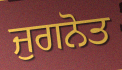
ਜੁਗਨੋਤ